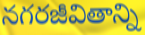
నగరజీవితాన్ని